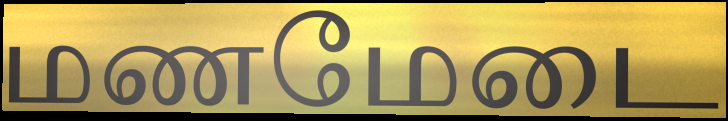
மணமேடை